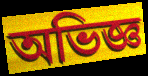
অভিজ্ঞ